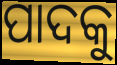
ପାଦକୁ